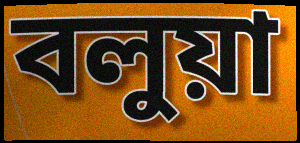
বলুয়া